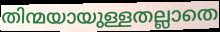
തിന്മയായുള്ളതല്ലാതെ